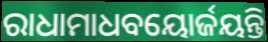
ରାଧାମାଧବୟୋର୍ଜୟନ୍ତି